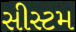
સીસ્ટમ